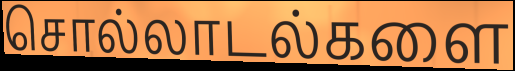
சொல்லாடல்களை